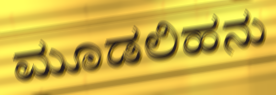
ಮೂಡಲಿಹನು